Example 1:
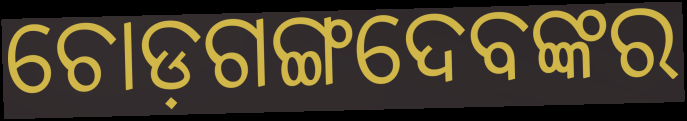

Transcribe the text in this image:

ଚୋଡ଼ଗଙ୍ଗଦେବଙ୍କର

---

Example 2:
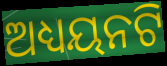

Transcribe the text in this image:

ଅଧ୍ୟୟନଟି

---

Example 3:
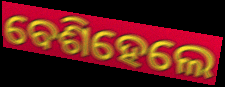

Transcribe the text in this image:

ବେଶିହେଲେ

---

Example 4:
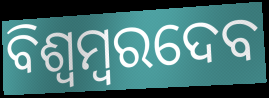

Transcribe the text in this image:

ବିଶ୍ୱମ୍ବରଦେବ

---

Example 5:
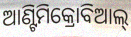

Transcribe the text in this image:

ଆଣ୍ଟିମିକ୍ରୋବିଆଲ୍